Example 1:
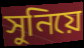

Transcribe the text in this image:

সুনিয়ে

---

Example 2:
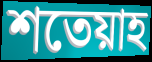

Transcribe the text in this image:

শতেয়াহ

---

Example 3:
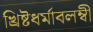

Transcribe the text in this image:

খ্রিষ্টধর্মাবলম্বী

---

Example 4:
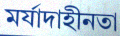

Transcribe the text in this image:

মর্যাদাহীনতা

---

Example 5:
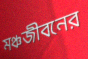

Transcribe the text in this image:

মঞ্চজীবনের